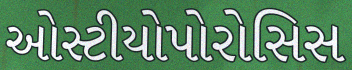
ઓસ્ટીયોપોરોસિસ